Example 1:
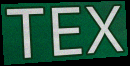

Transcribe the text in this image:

TEX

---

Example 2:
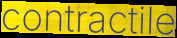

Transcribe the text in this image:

contractile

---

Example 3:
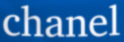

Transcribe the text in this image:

chanel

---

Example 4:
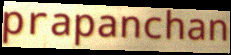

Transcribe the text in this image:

prapanchan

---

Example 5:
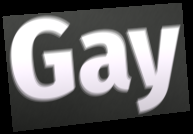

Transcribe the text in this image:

Gay